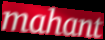
mahant